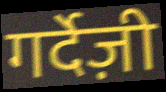
गर्देज़ी